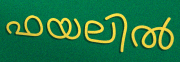
ഫയലിൽ